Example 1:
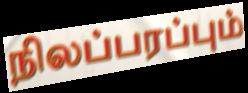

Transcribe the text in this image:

நிலப்பரப்பும்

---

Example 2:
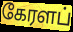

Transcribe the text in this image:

கேரளப்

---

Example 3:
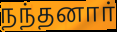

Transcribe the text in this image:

நந்தனார்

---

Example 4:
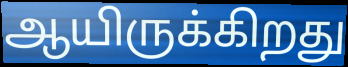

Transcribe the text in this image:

ஆயிருக்கிறது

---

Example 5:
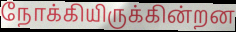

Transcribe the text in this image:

நோக்கியிருக்கின்றன